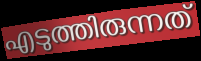
എടുത്തിരുന്നത്